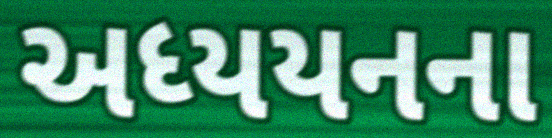
અધ્યયનના